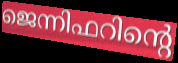
ജെന്നിഫറിന്റെ